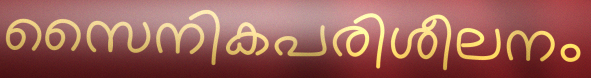
സൈനികപരിശീലനം